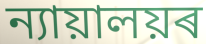
ন্যায়ালয়ৰ